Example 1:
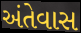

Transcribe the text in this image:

અંતેવાસ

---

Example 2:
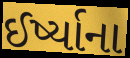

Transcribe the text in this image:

ઈર્ષ્યાના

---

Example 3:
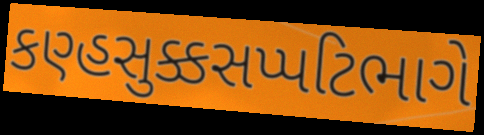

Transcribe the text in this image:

કણ્હસુક્કસપ્પટિભાગે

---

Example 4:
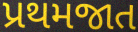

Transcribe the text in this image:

પ્રથમજાત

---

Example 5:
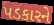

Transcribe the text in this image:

પડકારને